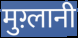
मुग़्लानी